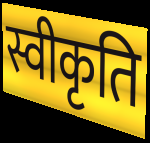
स्वीकृति